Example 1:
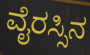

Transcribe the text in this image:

ವೈರಸ್ಸಿನ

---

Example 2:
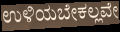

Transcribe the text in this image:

ಉಳಿಯಬೇಕಲ್ಲವೇ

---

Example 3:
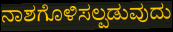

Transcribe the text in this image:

ನಾಶಗೊಳಿಸಲ್ಪಡುವುದು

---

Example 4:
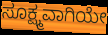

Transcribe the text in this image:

ಸೂಕ್ಷ್ಮವಾಗಿಯೇ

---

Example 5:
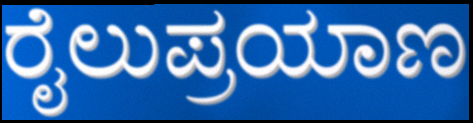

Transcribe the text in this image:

ರೈಲುಪ್ರಯಾಣ